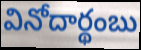
వినోదార్థంబు